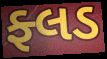
ફ્લડ